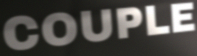
COUPLE